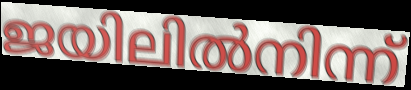
ജയിലിൽനിന്ന്